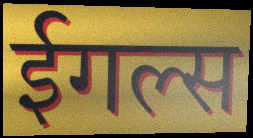
ईगल्स